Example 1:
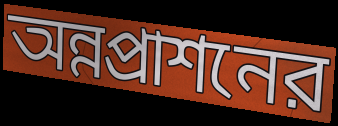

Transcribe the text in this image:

অন্নপ্রাশনের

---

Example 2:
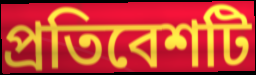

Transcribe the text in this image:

প্রতিবেশটি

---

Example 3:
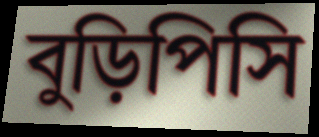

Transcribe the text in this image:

বুড়িপিসি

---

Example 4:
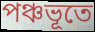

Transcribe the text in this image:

পঞ্চভূতে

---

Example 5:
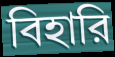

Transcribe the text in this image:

বিহারি